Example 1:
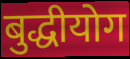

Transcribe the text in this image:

बुद्धीयोग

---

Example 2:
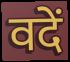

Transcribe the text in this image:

वदें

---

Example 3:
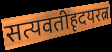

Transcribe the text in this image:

सत्यवतीहृदयरत्न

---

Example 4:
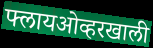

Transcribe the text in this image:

फ्लायओव्हरखाली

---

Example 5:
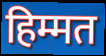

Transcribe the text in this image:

हिम्मत